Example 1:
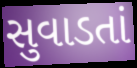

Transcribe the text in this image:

સુવાડતાં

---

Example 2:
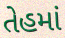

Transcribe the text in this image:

તેહમાં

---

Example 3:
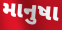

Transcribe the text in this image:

માનુષા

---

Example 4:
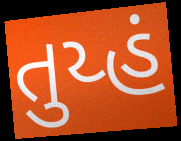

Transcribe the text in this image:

તુય્હં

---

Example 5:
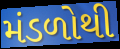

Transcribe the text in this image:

મંડળોથી